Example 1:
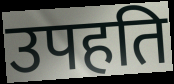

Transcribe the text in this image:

उपहति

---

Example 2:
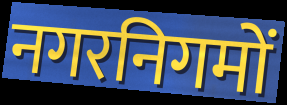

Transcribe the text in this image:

नगरनिगमों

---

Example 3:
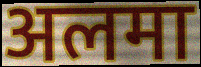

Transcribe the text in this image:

अलमा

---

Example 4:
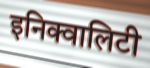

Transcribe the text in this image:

इनिक्वालिटी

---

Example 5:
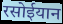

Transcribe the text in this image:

रसोईयान